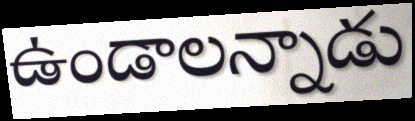
ఉండాలన్నాడు